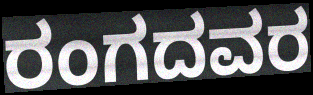
ರಂಗದವರ